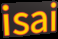
isai